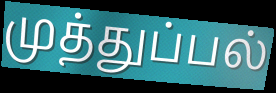
முத்துப்பல்